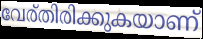
വേര്തിരിക്കുകയാണ്